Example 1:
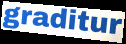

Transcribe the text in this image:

graditur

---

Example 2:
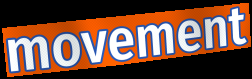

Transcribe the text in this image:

movement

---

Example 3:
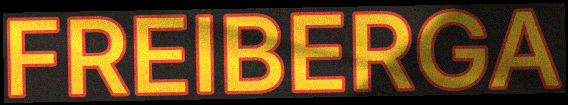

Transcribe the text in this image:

FREIBERGA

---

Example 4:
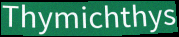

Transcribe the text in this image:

Thymichthys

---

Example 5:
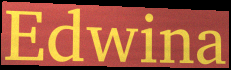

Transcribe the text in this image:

Edwina